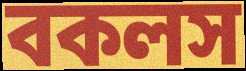
বকলস